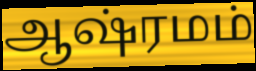
ஆஷ்ரமம்